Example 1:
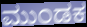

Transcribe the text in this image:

ಮುಂಡಕ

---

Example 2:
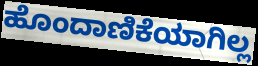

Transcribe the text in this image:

ಹೊಂದಾಣಿಕೆಯಾಗಿಲ್ಲ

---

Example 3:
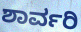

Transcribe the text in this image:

ಶಾರ್ವರಿ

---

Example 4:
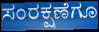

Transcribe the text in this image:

ಸಂರಕ್ಷಣೆಗೂ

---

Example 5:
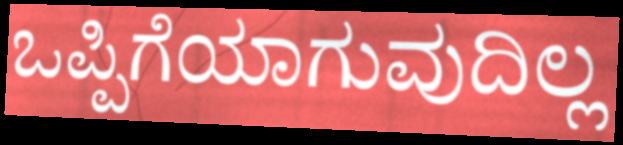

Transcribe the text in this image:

ಒಪ್ಪಿಗೆಯಾಗುವುದಿಲ್ಲ